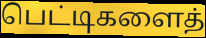
பெட்டிகளைத்